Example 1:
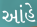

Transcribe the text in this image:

આંહે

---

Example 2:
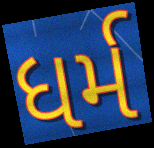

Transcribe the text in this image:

ધર્મ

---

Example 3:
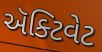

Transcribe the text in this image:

ઍક્ટિવેટ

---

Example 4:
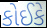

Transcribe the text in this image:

કોઈકે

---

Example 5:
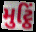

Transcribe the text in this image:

મુટ્ઠિં